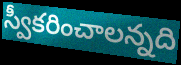
స్వీకరించాలన్నది